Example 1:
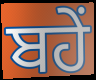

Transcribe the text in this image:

ਬਹੇਂ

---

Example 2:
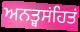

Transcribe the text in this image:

ਅਨਤ੍ਥਸਂਹਿਤਂ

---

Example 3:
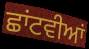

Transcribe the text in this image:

ਛਾਂਟਵੀਆਂ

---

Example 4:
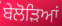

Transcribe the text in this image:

ਬੇਲੋੜਿਆਂ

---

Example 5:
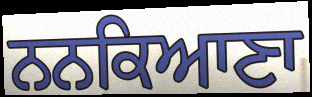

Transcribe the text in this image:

ਨਨਕਿਆਣਾ